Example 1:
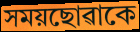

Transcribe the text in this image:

সময়ছোৱাকে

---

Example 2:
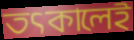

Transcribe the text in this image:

তৎকালেই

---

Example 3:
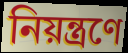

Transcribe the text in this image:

নিয়ন্ত্ৰণে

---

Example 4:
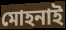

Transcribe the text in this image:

মোহনাই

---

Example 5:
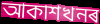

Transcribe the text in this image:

আকাশখনৰ